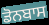
ਡੋਨਬਾਸ